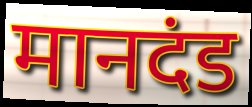
मानदंड